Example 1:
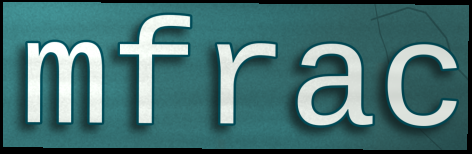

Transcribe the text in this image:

mfrac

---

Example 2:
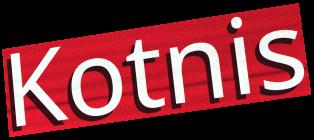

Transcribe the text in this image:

Kotnis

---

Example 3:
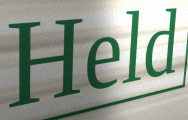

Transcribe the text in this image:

Held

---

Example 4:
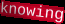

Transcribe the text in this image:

knowing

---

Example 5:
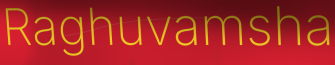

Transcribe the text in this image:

Raghuvamsha